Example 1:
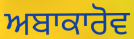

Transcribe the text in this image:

ਅਬਾਕਾਰੋਵ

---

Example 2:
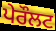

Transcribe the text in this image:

ਪੇਰੌਲਟ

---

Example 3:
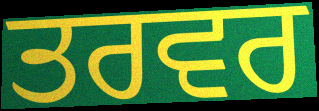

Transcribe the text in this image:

ਤਰਵਰ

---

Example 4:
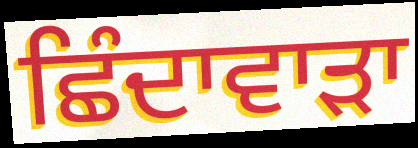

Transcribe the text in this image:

ਛਿੰਦਾਵਾੜਾ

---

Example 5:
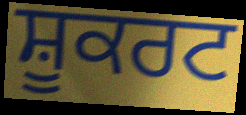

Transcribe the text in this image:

ਸ਼ੂਕਰਟ